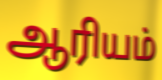
ஆரியம்